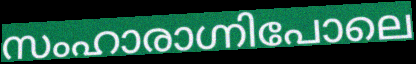
സംഹാരാഗ്നിപോലെ